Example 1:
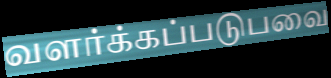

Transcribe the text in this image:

வளர்க்கப்படுபவை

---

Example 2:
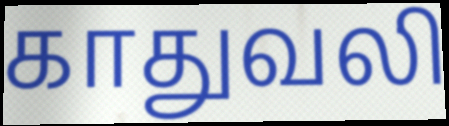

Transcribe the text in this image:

காதுவலி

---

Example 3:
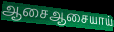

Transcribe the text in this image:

ஆசைஆசையாய்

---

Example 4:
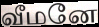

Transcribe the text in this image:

வீமனே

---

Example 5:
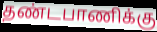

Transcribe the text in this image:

தண்டபாணிக்கு